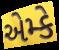
એમ્કે